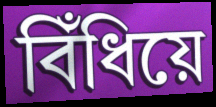
বিঁধিয়ে